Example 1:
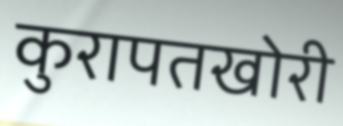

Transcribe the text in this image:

कुरापतखोरी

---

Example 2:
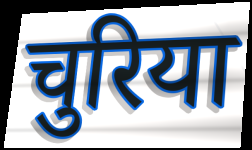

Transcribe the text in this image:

चुरिया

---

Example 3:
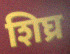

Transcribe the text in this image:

शिघ्र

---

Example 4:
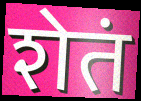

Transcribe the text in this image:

शेतं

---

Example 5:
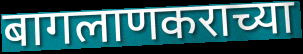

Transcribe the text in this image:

बागलाणकराच्या